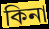
কিনা